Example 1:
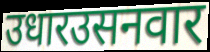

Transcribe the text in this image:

उधारउसनवार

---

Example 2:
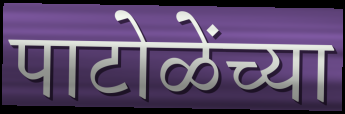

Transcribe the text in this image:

पाटोळेंच्या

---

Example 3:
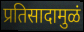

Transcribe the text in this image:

प्रतिसादामुळं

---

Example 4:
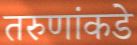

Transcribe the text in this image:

तरुणांकडे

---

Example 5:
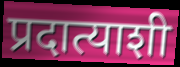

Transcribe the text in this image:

प्रदात्याशी